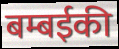
बम्बईकी